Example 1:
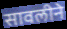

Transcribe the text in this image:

सावलीने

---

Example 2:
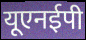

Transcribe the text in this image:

यूएनईपी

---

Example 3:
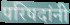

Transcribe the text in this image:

परिषदांनी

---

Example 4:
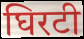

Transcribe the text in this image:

घिरटी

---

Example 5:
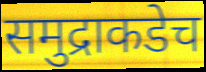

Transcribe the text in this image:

समुद्राकडेच